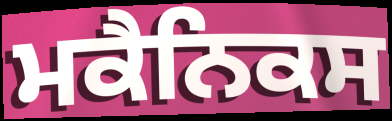
ਮਕੈਨਿਕਸ